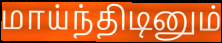
மாய்ந்திடினும்